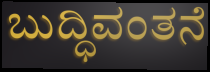
ಬುದ್ಧಿವಂತನೆ